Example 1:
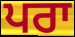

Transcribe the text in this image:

ਪਰਾ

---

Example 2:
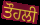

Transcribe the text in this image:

ਤੌਹਲੀ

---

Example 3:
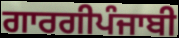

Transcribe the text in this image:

ਗਾਰਗੀਪੰਜਾਬੀ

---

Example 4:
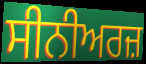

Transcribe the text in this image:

ਸੀਨੀਅਰਜ਼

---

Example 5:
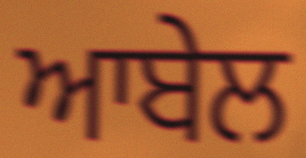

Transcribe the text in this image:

ਆਬੇਲ